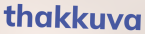
thakkuva